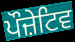
ਪੌਜ਼ੇਟਿਵ